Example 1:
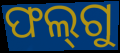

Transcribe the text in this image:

ଫଲ୍‌ଗୁ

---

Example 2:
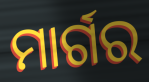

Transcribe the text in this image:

ମାର୍ଗର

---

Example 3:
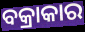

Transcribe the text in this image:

ବକ୍ରାକାର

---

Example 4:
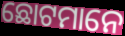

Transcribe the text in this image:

ଛୋଟମାନେ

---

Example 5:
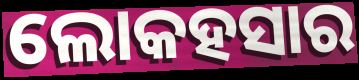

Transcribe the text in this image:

ଲୋକହସାର